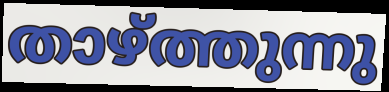
താഴ്ത്തുന്നു